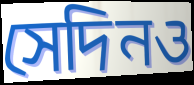
সেদিনও